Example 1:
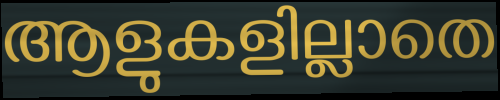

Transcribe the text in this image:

ആളുകളില്ലാതെ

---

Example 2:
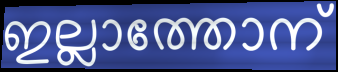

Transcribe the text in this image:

ഇല്ലാത്തോന്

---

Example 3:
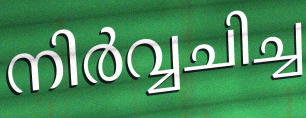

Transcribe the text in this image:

നിർവ്വചിച്ച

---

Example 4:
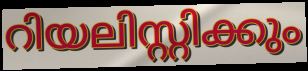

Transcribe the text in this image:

റിയലിസ്റ്റിക്കും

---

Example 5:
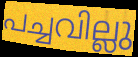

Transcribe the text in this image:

പച്ചവില്ലു